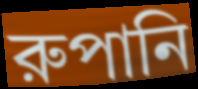
রুপানি